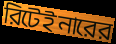
রিটেইনারের